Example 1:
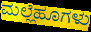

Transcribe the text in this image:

ಮಲ್ಲೆಹೂಗಳು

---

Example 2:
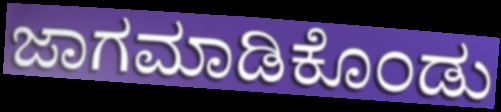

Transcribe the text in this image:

ಜಾಗಮಾಡಿಕೊಂಡು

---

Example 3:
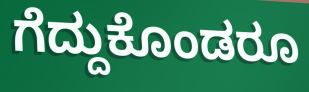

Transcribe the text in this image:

ಗೆದ್ದುಕೊಂಡರೂ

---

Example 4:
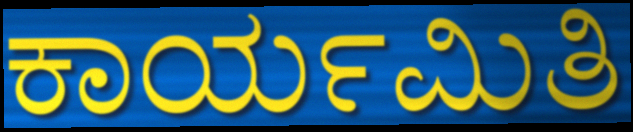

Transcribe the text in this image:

ಕಾರ್ಯಮಿತಿ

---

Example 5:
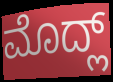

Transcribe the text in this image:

ಮೊದ್ಲ್